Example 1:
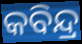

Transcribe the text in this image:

କବିନ୍ଦ୍ର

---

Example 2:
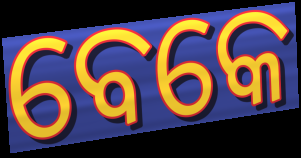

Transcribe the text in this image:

ବେକେ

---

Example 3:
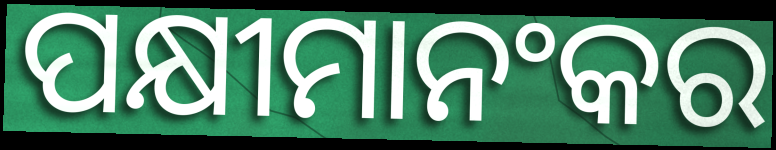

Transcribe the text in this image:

ପକ୍ଷୀମାନଂକର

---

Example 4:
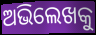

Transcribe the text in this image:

ଅଭିଲେଖକୁ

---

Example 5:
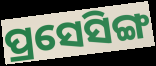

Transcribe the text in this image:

ପ୍ରସେସିଙ୍ଗ